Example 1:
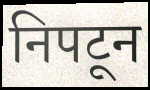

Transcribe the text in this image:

निपटून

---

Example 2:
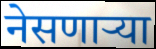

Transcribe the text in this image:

नेसणाऱ्या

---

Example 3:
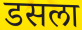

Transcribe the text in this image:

डसला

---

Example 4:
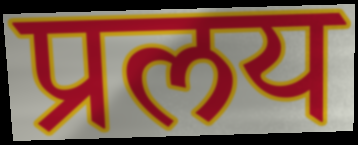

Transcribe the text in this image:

प्रलय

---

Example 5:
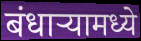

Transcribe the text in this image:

बंधाऱ्यामध्ये